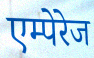
एम्पेरेज